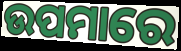
ଉପମାରେ